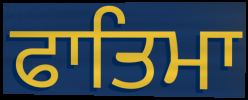
ਫਾਤਿਮਾ